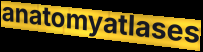
anatomyatlases